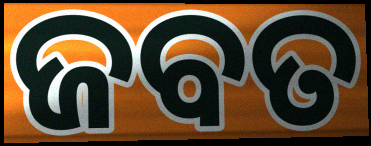
ଜବତ